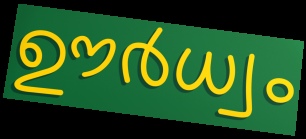
ഊർധ്വം